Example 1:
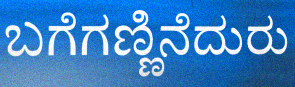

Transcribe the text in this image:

ಬಗೆಗಣ್ಣಿನೆದುರು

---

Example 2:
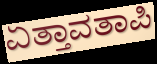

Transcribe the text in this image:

ಏತ್ತಾವತಾಪಿ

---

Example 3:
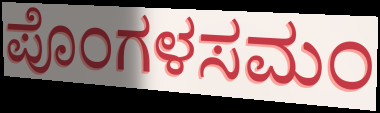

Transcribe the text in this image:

ಪೊಂಗಳಸಮಂ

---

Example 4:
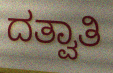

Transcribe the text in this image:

ದತ್ವಾತಿ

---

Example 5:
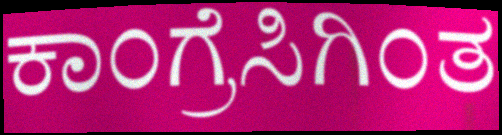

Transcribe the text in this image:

ಕಾಂಗ್ರೆಸಿಗಿಂತ